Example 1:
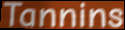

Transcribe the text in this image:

Tannins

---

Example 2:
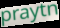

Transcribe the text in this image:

praytn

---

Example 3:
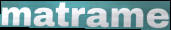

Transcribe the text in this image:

matrame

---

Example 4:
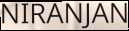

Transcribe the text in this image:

NIRANJAN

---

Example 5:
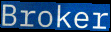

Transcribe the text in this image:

Broker